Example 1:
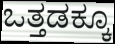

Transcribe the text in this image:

ಒತ್ತಡಕ್ಕೂ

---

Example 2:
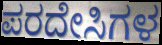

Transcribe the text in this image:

ಪರದೇಸಿಗಳ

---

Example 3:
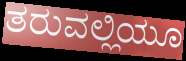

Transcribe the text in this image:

ತರುವಲ್ಲಿಯೂ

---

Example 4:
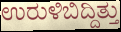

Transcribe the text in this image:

ಉರುಳಿಬಿದ್ದಿತ್ತು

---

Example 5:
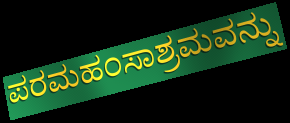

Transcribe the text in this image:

ಪರಮಹಂಸಾಶ್ರಮವನ್ನು